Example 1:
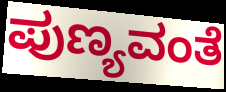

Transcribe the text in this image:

ಪುಣ್ಯವಂತೆ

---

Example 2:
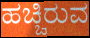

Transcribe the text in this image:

ಹಚ್ಚಿರುವ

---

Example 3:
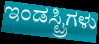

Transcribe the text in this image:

ಇಂಡಸ್ಟ್ರಿಗಳು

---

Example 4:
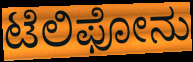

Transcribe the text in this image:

ಟೆಲಿಫೋನು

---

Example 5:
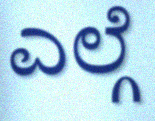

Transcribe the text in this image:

ಎಲ್ಗೆ